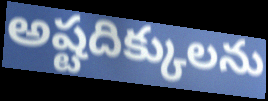
అష్టదిక్కులను